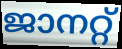
ജാനറ്റ്